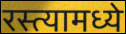
रस्त्यामध्ये